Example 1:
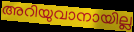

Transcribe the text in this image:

അറിയുവാനായില്ല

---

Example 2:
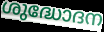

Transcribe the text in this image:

ശുദ്ധോദന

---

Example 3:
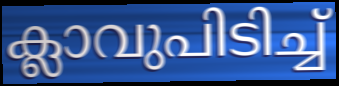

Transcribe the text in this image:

ക്ലാവുപിടിച്ച്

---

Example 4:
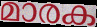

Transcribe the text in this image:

മാരക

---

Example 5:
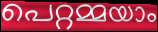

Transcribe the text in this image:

പെറ്റമ്മയാം